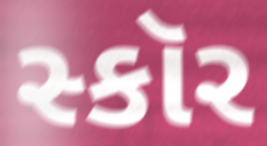
સ્કૉર